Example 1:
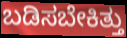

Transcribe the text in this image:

ಬಡಿಸಬೇಕಿತ್ತು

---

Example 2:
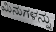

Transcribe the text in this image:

ಮಿನುಗಳನ್ನು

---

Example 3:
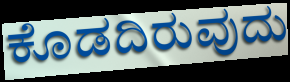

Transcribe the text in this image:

ಕೊಡದಿರುವುದು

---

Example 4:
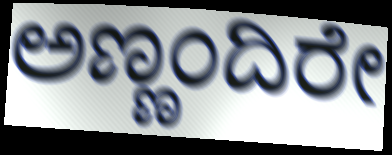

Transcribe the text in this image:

ಅಣ್ಣಂದಿರೇ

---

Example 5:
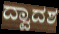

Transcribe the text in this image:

ದ್ವಾದಶ